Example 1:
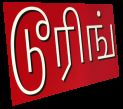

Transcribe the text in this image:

டூரிங்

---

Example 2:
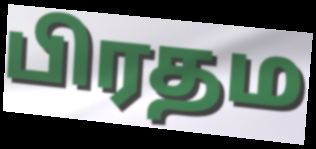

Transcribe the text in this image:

பிரதம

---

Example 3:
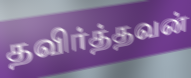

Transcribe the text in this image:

தவிர்த்தவன்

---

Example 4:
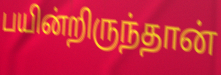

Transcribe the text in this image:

பயின்றிருந்தான்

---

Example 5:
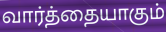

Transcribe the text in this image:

வார்த்தையாகும்